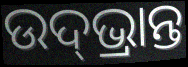
ଉଦ୍‌ଭ୍ରାନ୍ତ